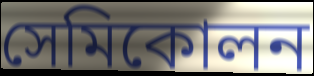
সেমিকোলন